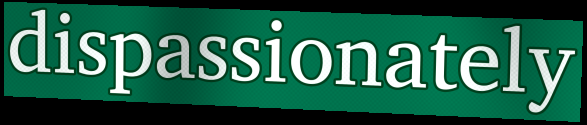
dispassionately